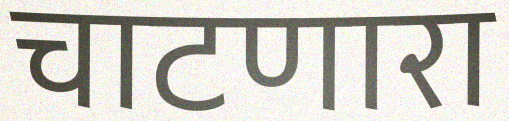
चाटणारा